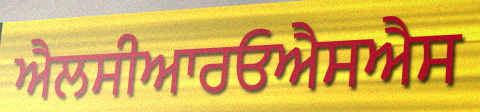
ਐਲਸੀਆਰਓਐਸਐਸ